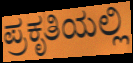
ಪ್ರಕೃತಿಯಲ್ಲಿ